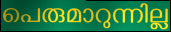
പെരുമാറുന്നില്ല